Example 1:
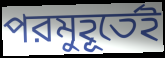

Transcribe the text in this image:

পরমুহূর্তেই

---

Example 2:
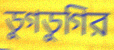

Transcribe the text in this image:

ডুগডুগির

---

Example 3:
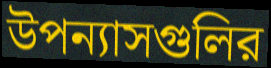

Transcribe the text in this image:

উপন্যাসগুলির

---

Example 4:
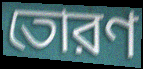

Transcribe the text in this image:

তোরণ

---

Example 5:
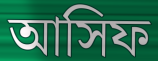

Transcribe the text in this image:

আসিফ